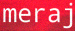
meraj